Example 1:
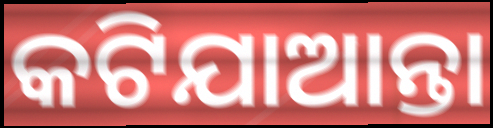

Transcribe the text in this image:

କଟିଯାଆନ୍ତା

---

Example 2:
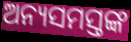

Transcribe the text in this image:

ଅନ୍ୟସମସ୍ତଙ୍କ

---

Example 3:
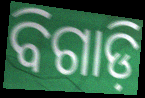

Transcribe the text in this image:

ବିଗାଡ଼ି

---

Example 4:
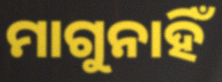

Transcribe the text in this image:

ମାଗୁନାହିଁ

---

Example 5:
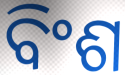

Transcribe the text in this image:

ବିଂଶ